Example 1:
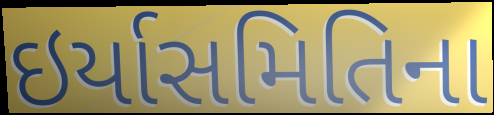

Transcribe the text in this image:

ઇર્યાસમિતિના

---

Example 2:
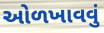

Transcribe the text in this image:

ઓળખાવવું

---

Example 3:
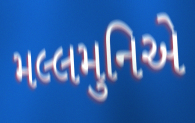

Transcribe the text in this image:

મલ્લમુનિએ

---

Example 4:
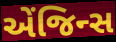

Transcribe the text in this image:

એંજિન્સ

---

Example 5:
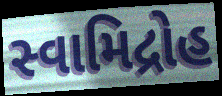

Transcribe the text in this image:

સ્વામિદ્રોહ